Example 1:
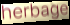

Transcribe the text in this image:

herbage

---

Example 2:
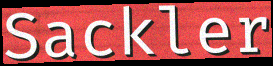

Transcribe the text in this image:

Sackler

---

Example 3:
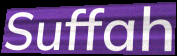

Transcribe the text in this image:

Suffah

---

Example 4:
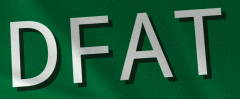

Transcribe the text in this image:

DFAT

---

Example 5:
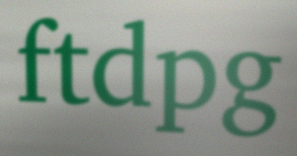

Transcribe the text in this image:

ftdpg